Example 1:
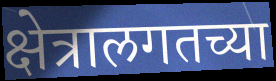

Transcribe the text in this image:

क्षेत्रालगतच्या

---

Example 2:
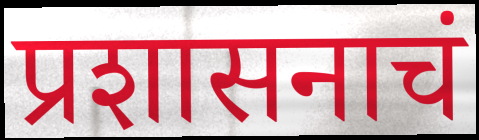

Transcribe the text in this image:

प्रशासनाचं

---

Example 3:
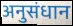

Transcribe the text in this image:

अनुसंधान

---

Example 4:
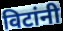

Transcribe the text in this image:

विटांनी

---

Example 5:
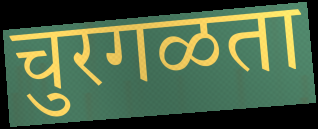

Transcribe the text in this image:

चुरगळता